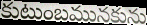
కుటుంబమునకును